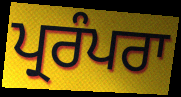
ਪ੍ਰਰੰਪਰਾ